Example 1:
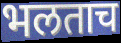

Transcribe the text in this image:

भलताच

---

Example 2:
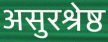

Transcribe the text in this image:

असुरश्रेष्ठ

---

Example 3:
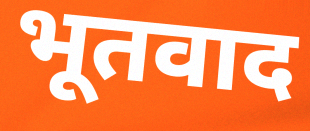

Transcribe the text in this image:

भूतवाद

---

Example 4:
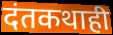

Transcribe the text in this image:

दंतकथाही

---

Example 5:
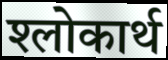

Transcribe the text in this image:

श्लोकार्थ